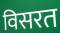
विसरत